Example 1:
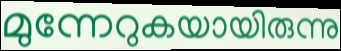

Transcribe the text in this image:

മുന്നേറുകയായിരുന്നു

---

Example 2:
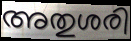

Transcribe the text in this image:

അതുശരി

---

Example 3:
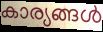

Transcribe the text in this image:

കാര്യങ്ങൾ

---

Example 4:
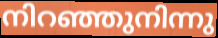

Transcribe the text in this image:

നിറഞ്ഞുനിന്നു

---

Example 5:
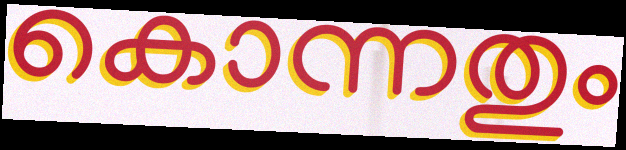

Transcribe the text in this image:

കൊന്നതും